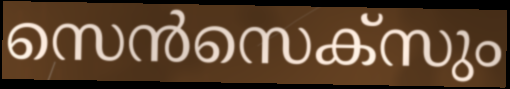
സെൻസെക്സും